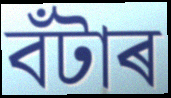
বঁটাৰ